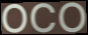
OCO